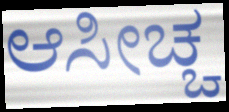
ಆಸೀಚ್ಚ